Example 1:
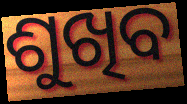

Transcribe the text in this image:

ଶୁଖିବ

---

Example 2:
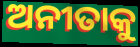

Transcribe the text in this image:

ଅନୀତାକୁ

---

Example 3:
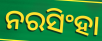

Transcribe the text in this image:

ନରସିଂହା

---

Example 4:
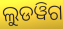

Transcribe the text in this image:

ଲୁଡୱିଗ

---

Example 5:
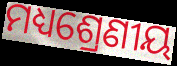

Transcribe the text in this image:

ମଧ୍ୟଶ୍ରେଣୀୟ